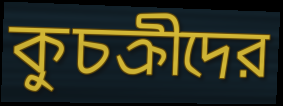
কুচক্রীদের